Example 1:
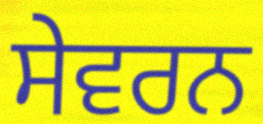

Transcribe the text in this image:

ਸੇਵਰਨ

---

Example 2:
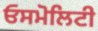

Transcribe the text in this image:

ਓਸਮੋਲਿਟੀ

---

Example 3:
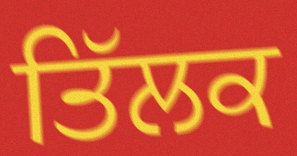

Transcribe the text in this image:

ਤਿੱਲਕ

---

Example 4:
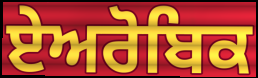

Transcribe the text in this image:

ਏਅਰੋਬਿਕ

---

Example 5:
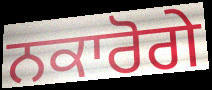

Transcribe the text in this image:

ਨਕਾਰੋਗੇ